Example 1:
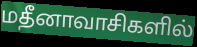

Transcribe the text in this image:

மதீனாவாசிகளில்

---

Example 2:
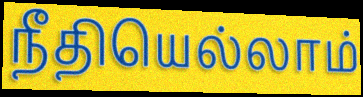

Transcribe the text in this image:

நீதியெல்லாம்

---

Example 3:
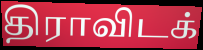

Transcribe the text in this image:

திராவிடக்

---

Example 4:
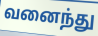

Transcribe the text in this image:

வனைந்து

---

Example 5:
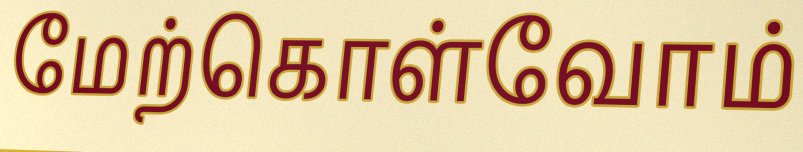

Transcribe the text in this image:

மேற்கொள்வோம்